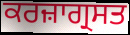
ਕਰਜ਼ਾਗ੍ਰਸਤ